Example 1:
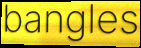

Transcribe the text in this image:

bangles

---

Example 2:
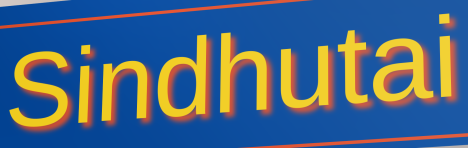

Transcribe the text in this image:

Sindhutai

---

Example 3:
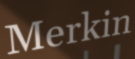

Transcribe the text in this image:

Merkin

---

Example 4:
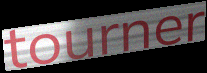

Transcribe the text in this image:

tourner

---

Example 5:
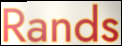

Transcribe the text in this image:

Rands